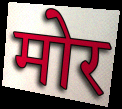
मोर